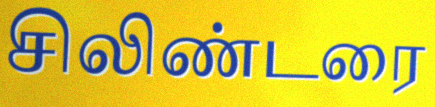
சிலிண்டரை